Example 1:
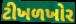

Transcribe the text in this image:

ટીખળખોર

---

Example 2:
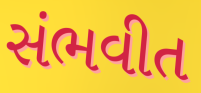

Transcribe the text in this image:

સંભવીત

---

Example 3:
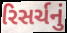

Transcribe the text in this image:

રિસર્ચનું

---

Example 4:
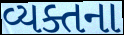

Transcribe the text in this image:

વ્યક્તના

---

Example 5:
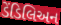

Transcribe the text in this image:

ડેંડિલિઅન